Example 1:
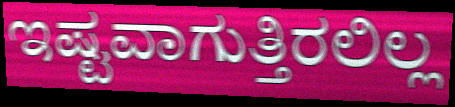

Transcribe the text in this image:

ಇಷ್ಟವಾಗುತ್ತಿರಲಿಲ್ಲ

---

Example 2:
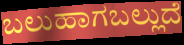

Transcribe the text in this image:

ಬಲುಹಾಗಬಲ್ಲುದೆ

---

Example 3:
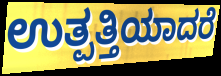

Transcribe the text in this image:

ಉತ್ಪತ್ತಿಯಾದರೆ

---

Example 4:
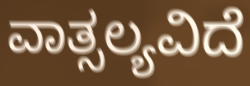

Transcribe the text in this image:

ವಾತ್ಸಲ್ಯವಿದೆ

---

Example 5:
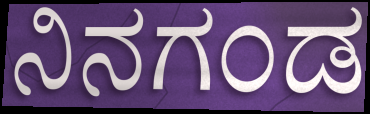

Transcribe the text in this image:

ನಿನಗಂಡ